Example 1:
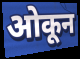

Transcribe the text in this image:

ओकून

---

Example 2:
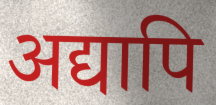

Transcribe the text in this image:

अद्यापि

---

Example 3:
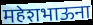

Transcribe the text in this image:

महेशभाऊना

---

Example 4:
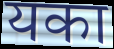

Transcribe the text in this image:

यका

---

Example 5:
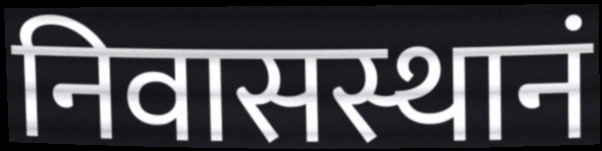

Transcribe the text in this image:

निवासस्थानं